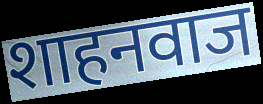
शाहनवाज